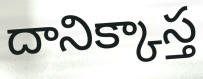
దానిక్కాస్త